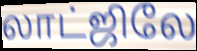
லாட்ஜிலே